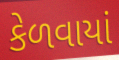
કેળવાયાં